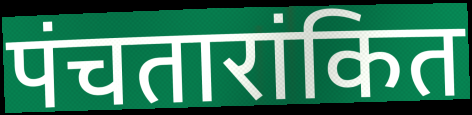
पंचतारांकित